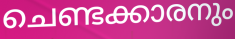
ചെണ്ടക്കാരനും